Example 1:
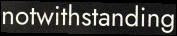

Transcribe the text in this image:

notwithstanding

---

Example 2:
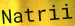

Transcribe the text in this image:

Natrii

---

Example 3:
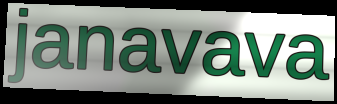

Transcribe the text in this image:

janavava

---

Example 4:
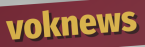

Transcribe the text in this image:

voknews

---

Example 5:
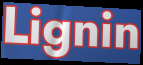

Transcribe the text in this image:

Lignin